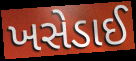
ખસેડાઈ